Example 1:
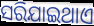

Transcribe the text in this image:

ସରିଯାଇଥାଏ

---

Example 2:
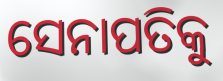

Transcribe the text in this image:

ସେନାପତିକୁ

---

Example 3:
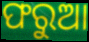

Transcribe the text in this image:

ଫରୁଆ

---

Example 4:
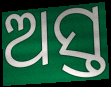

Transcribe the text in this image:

ଅସ୍ତ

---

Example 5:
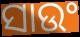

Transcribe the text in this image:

ସାଉଂ